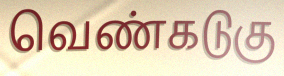
வெண்கடுகு